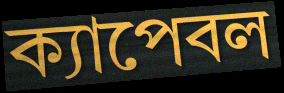
ক্যাপেবল